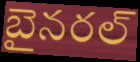
బైనరల్